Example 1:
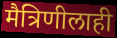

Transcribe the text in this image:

मैत्रिणीलाही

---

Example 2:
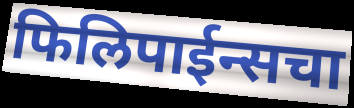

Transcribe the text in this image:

फिलिपाईन्सचा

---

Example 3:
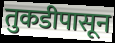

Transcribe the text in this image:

तुकडीपासून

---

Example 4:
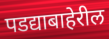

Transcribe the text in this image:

पडद्याबाहेरील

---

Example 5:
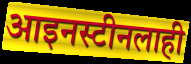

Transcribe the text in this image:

आइनस्टीनलाही